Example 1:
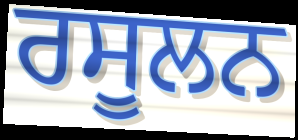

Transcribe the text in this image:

ਰਸੂਲਨ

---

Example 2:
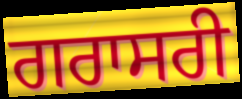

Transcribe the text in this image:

ਗਰਾਸਰੀ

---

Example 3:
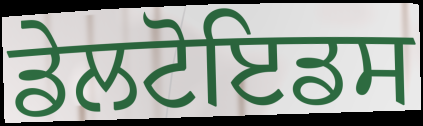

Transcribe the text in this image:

ਡੇਲਟੋਇਡਸ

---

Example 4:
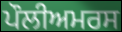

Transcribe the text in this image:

ਪੌਲੀਅਮਰਸ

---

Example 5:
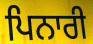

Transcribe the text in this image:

ਪਿਨਾਰੀ